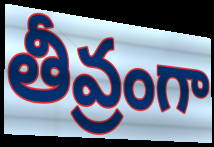
తీవ్రంగా